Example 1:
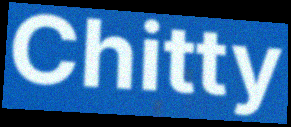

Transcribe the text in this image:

Chitty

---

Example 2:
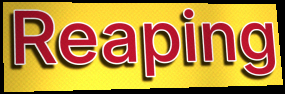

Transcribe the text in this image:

Reaping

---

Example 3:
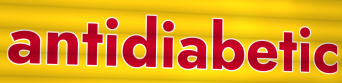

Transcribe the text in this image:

antidiabetic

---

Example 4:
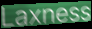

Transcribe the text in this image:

Laxness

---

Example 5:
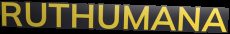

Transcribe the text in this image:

RUTHUMANA